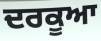
ਦਰਕੂਆ